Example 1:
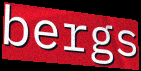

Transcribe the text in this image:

bergs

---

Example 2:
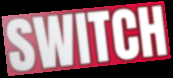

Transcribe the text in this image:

SWITCH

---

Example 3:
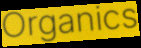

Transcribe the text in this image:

Organics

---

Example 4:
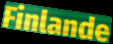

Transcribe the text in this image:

Finlande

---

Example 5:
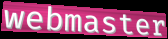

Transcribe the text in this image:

webmaster